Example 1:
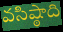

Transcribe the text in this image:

వసిష్ఠాది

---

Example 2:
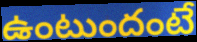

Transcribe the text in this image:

ఉంటుందంటే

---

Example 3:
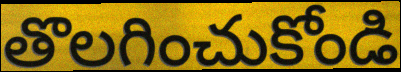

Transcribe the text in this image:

తొలగించుకోండి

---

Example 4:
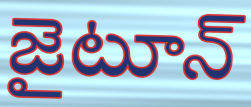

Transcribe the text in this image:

జైటూన్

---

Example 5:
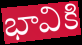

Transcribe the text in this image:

భావికి